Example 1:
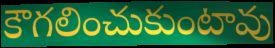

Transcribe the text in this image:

కౌగలించుకుంటావు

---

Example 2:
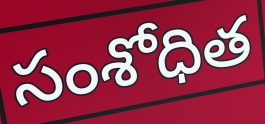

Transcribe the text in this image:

సంశోధిత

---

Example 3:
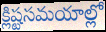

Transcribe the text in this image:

క్లిష్టసమయాల్లో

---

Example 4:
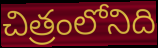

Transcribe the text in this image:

చిత్రంలోనిది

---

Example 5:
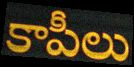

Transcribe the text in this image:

కాపీలు